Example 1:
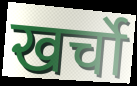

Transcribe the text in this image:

खर्चो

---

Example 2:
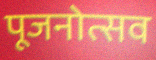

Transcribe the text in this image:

पूजनोत्सव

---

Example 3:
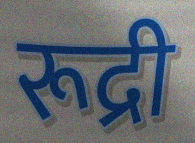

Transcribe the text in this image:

रूद्री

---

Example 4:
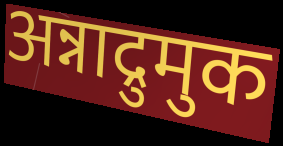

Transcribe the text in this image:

अन्नाद्रुमुक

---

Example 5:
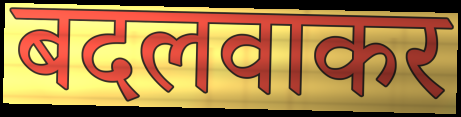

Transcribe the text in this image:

बदलवाकर